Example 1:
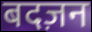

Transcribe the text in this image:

बदज़न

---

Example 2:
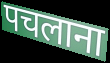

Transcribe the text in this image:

पचलाना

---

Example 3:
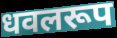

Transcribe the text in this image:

धवलरूप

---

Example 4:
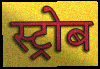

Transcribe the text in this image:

स्ट्रोब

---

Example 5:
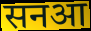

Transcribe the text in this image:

सनआ